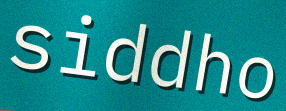
siddho